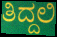
ತಿದ್ದಲಿ